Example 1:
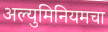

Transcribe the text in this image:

अल्युमिनियमचा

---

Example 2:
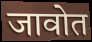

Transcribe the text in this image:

जावोत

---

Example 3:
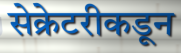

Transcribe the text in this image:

सेक्रेटरीकडून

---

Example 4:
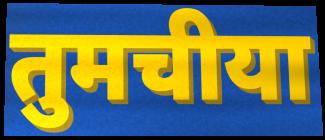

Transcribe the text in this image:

तुमचीया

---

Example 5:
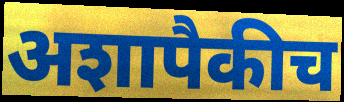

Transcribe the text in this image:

अशापैकीच